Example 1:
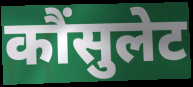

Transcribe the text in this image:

कौंसुलेट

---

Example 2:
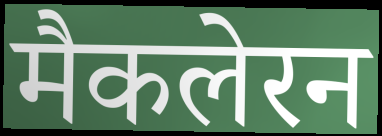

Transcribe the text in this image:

मैकलेरन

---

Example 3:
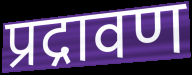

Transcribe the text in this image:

प्रद्रावण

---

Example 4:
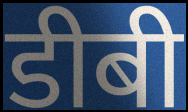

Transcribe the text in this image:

डीबी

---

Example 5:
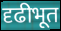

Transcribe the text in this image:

दृढीभूत